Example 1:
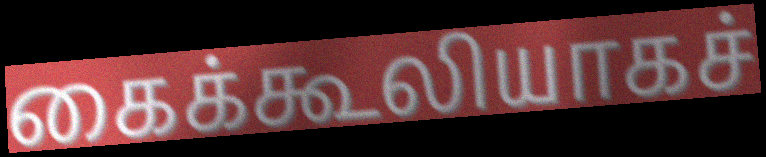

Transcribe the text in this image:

கைக்கூலியாகச்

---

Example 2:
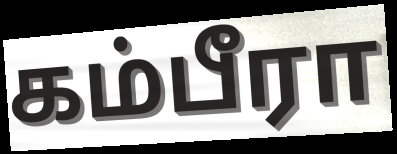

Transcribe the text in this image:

கம்பீரா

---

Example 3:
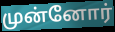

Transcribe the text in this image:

முன்னோர்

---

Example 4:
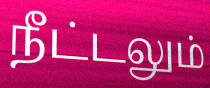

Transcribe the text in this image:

நீட்டலும்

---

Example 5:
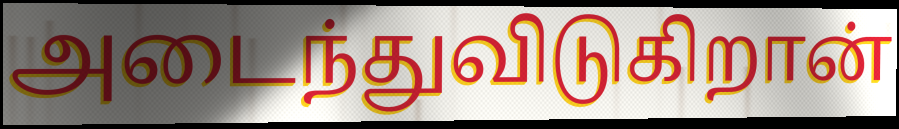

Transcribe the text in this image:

அடைந்துவிடுகிறான்